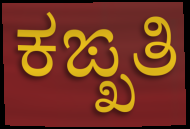
ಕಙ್ಖತಿ